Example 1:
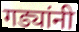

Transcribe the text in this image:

गड्यांनी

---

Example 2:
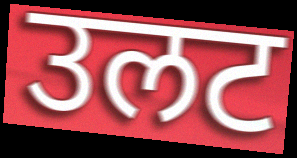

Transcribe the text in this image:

उलट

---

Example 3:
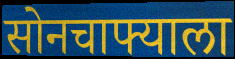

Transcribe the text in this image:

सोनचाफ्याला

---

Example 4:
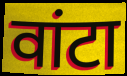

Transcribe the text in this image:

वांटा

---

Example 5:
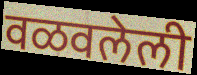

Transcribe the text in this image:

वळवलेली